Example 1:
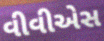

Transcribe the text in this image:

વીવીએસ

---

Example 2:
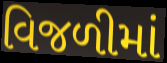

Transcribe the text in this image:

વિજળીમાં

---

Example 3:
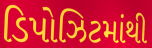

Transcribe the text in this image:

ડિપોઝિટમાંથી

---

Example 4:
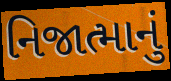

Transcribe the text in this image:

નિજાત્માનું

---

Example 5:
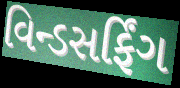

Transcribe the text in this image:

વિન્ડસર્ફિંગ